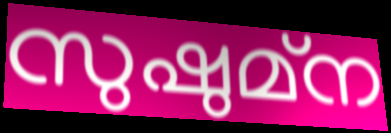
സുഷുമ്ന